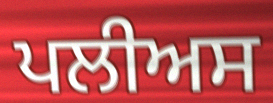
ਪਲੀਅਸ